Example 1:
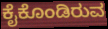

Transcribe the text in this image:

ಕೈಕೊಂಡಿರುವ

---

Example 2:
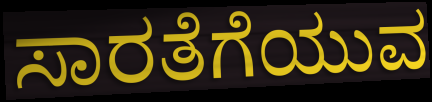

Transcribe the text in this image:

ಸಾರತೆಗೆಯುವ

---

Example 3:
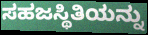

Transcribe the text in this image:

ಸಹಜಸ್ಥಿತಿಯನ್ನು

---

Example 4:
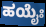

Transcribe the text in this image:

ಹಯೈಃ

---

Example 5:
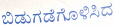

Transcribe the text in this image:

ಬಿಡುಗಡೆಗೊಳಿಸಿದ